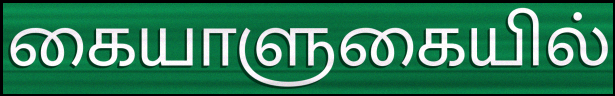
கையாளுகையில்